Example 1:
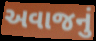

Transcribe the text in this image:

અવાજનું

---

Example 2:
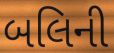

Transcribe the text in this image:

બલિની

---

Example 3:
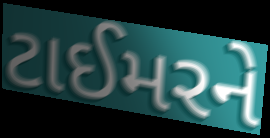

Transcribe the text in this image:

ટાઈમરને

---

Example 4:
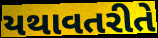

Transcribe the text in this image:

યથાવતરીતે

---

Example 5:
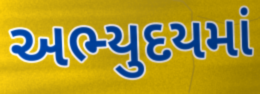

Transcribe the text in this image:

અભ્યુદયમાં